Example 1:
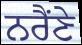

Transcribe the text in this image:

ਨਰੈਂਣੇ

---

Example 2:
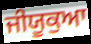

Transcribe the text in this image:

ਜੀਯੂਕੁਆ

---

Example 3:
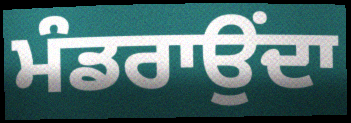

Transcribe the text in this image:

ਮੰਡਰਾਉਂਦਾ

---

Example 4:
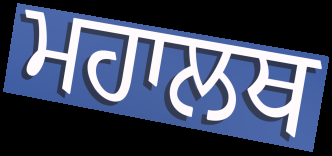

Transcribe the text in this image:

ਮਹਾਲਥ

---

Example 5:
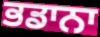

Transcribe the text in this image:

ਭਡਾਨਾ